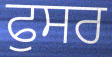
ਫੁਸਰ